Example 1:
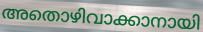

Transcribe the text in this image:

അതൊഴിവാക്കാനായി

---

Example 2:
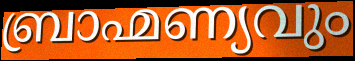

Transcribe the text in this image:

ബ്രാഹ്മണ്യവും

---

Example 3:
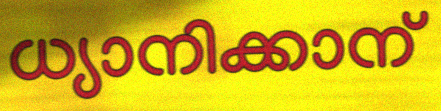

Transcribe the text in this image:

ധ്യാനിക്കാന്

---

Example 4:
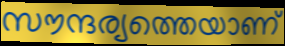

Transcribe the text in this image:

സൗന്ദര്യത്തെയാണ്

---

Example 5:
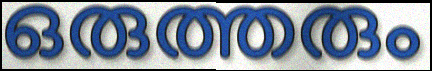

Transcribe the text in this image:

ഒരുത്തരും